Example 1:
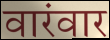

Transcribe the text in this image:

वारंवार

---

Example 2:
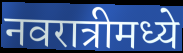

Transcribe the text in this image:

नवरात्रीमध्ये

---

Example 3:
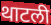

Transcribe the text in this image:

थाटली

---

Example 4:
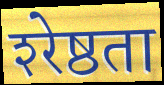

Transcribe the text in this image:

श्रेष्ठता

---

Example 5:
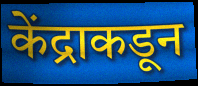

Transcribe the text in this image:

केंद्राकडून